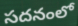
సదనంలో